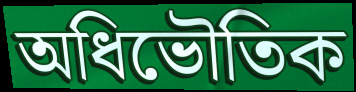
অধিভৌতিক